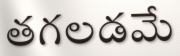
తగలడమే